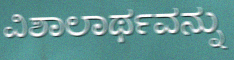
ವಿಶಾಲಾರ್ಥವನ್ನು